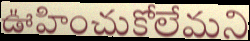
ఊహించుకోలేమని